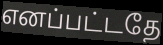
எனப்பட்டதே